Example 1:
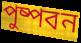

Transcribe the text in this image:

পুষ্পবন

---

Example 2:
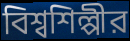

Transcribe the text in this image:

বিশ্বশিল্পীর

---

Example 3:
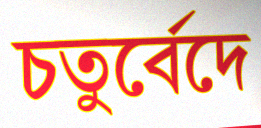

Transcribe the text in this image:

চতুর্বেদে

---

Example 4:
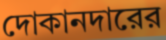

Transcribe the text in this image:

দোকানদারের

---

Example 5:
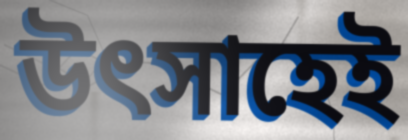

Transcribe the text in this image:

উৎসাহেই